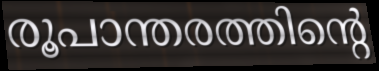
രൂപാന്തരത്തിന്റെ